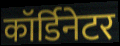
कॉर्डिनेटर